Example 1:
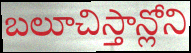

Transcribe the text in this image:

బలూచిస్తాన్లోని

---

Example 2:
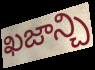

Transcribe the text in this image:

ఖజాన్చి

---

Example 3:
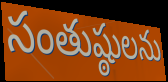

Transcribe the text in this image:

సంతుష్ఠులను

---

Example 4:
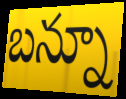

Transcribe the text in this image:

బన్నూ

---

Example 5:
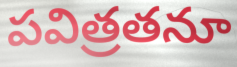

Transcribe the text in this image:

పవిత్రతనూ